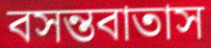
বসন্তবাতাস